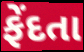
ફેંદતા